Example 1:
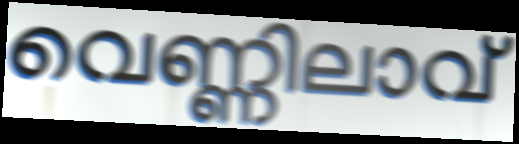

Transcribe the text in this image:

വെണ്ണിലാവ്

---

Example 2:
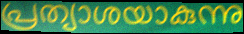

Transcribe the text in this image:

പ്രത്യാശയാകുന്നു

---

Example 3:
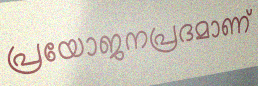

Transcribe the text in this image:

പ്രയോജനപ്രദമാണ്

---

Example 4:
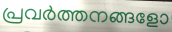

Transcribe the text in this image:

പ്രവർത്തനങ്ങളോ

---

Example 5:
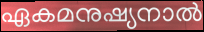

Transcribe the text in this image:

ഏകമനുഷ്യനാൽ